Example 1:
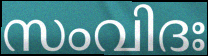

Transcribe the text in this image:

സംവിദഃ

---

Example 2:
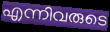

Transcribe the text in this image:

എന്നിവരുടെ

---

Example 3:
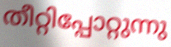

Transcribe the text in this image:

തീറ്റിപ്പോറ്റുന്നു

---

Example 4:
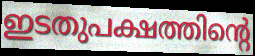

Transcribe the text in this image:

ഇടതുപക്ഷത്തിന്റെ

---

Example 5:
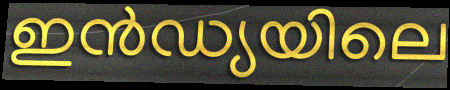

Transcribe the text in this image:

ഇൻഡ്യയിലെ